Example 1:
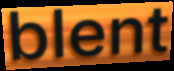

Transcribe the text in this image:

blent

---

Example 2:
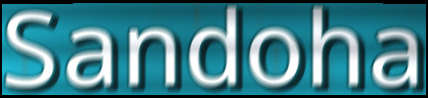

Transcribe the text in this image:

Sandoha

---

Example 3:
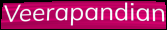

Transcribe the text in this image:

Veerapandian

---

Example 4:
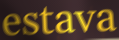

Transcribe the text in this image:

estava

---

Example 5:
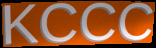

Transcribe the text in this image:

KCCC